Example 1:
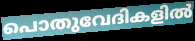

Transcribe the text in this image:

പൊതുവേദികളിൽ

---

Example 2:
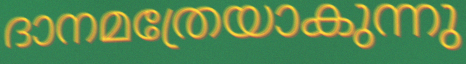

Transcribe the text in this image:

ദാനമത്രേയാകുന്നു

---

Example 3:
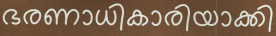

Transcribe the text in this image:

ഭരണാധികാരിയാക്കി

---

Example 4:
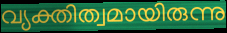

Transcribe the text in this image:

വ്യക്തിത്വമായിരുന്നു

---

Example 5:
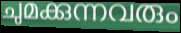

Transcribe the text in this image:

ചുമക്കുന്നവരും